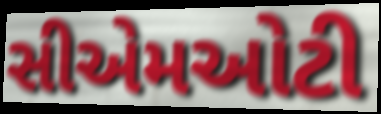
સીએમઓટી